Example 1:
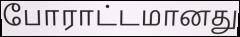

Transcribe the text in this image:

போராட்டமானது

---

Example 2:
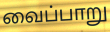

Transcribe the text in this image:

வைப்பாறு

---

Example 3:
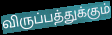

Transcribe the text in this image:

விருப்பத்துக்கும்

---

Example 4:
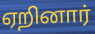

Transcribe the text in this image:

ஏறினார்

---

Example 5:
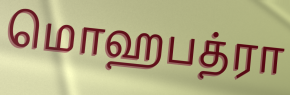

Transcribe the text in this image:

மொஹபத்ரா